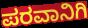
ಪರವಾನಿಗಿ